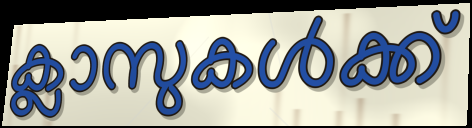
ക്ലാസുകൾക്ക്